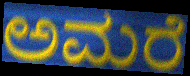
ಅಮರೆ